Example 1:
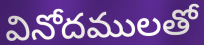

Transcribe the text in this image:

వినోదములతో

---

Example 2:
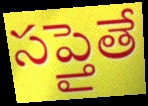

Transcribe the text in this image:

సప్తైతే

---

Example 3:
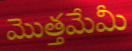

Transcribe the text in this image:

మొత్తమేమీ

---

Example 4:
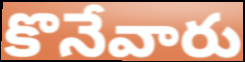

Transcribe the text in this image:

కొనేవారు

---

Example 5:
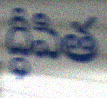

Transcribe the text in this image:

ద్ధీపిత